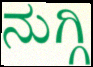
ನುಗ್ಗಿ